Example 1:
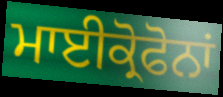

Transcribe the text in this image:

ਮਾਈਕ੍ਰੋਫੋਨਾਂ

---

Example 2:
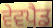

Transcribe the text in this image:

ਵੇਵਪੈਡ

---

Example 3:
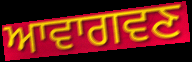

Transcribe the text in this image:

ਆਵਾਗਵਣ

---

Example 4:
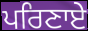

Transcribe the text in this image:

ਪਰਿਣਾਏ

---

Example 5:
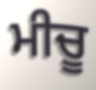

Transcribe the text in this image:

ਮੀਚੂ